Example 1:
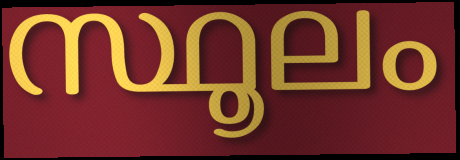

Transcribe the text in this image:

സ്ഥൂലം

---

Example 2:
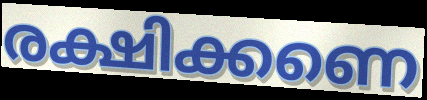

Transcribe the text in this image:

രക്ഷിക്കണെ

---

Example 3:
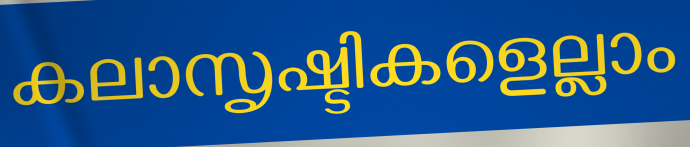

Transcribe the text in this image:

കലാസൃഷ്ടികളെല്ലാം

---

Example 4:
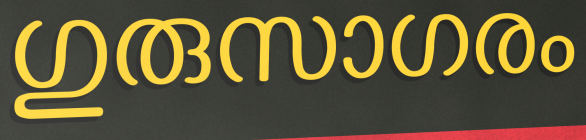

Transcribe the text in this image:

ഗുരുസാഗരം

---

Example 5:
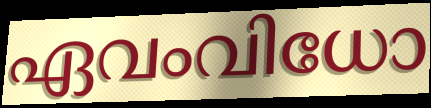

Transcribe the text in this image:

ഏവംവിധോ